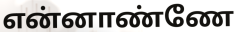
என்னாண்ணே